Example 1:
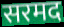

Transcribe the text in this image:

सरमद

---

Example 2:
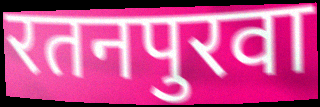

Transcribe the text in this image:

रतनपुरवा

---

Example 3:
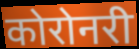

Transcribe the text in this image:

कोरोनरी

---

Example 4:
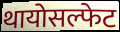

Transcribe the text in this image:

थायोसल्फेट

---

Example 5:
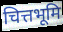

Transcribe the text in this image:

चित्तभूमि